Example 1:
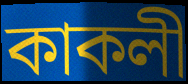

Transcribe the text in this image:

কাকলী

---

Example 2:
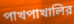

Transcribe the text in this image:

পাখপাখালির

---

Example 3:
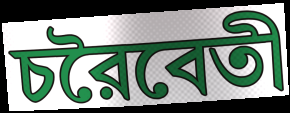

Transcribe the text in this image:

চরৈবেতী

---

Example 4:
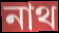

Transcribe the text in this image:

নাথ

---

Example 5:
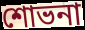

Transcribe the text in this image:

শোভনা